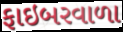
ફાઇબરવાળા